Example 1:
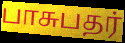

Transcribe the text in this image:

பாசுபதர்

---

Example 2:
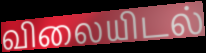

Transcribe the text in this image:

விலையிடல்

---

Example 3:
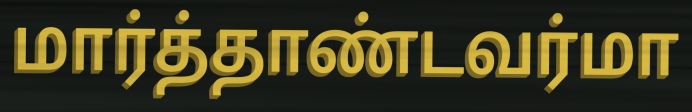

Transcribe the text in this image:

மார்த்தாண்டவர்மா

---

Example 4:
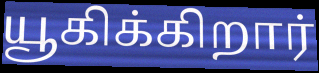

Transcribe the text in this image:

யூகிக்கிறார்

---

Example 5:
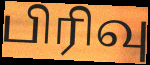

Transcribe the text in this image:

பிரிவு